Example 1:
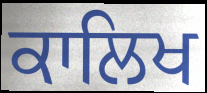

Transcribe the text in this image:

ਕਾਲਿਖ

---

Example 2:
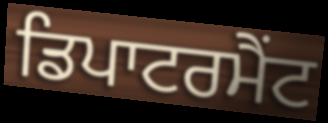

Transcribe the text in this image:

ਡਿਪਾਟਰਮੈਂਟ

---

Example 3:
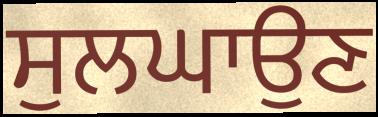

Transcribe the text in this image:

ਸੁਲਘਾਉਣ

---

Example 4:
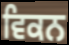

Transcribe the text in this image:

ਵਿਕਨ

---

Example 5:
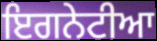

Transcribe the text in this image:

ਇਗਨੇਟੀਆ